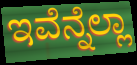
ಇವೆನ್ನೆಲ್ಲಾ